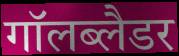
गॉलब्लैडर